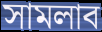
সামলাব